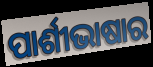
ପାର୍ଶୀଭାଷାର